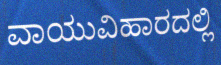
ವಾಯುವಿಹಾರದಲ್ಲಿ